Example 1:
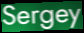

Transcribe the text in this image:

Sergey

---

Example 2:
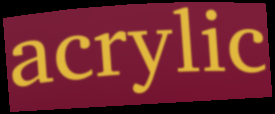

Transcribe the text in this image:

acrylic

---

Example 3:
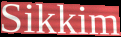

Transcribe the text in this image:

Sikkim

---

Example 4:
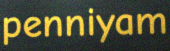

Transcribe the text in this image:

penniyam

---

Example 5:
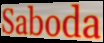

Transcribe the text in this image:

Saboda